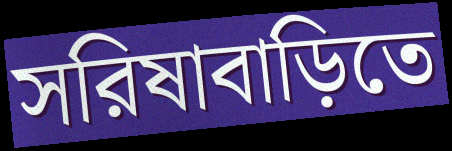
সরিষাবাড়িতে